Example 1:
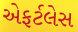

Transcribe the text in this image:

એફર્ટલેસ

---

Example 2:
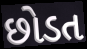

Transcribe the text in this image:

છોડત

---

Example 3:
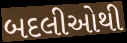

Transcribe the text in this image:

બદલીઓથી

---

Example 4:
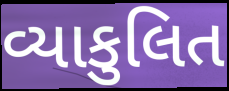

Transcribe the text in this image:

વ્યાકુલિત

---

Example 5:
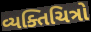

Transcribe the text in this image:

વ્યક્તિચિત્રો